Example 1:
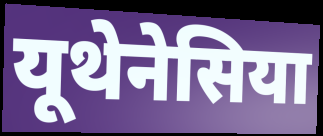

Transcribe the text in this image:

यूथेनेसिया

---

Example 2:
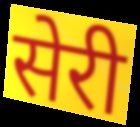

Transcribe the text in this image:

सेरी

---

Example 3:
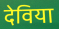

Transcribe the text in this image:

देविया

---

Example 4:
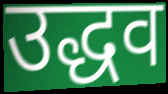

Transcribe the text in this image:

उद्धव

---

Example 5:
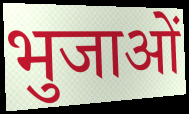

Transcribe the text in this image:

भुजाओं